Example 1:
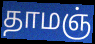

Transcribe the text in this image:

தாமஞ்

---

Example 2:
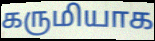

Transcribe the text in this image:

கருமியாக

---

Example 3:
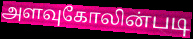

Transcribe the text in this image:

அளவுகோலின்படி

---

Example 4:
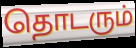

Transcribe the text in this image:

தொடரும்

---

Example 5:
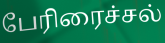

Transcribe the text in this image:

பேரிரைச்சல்